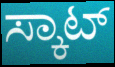
ಸ್ಕಾಟ್